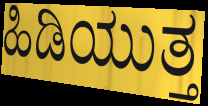
ಹಿಡಿಯುತ್ತ